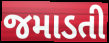
જમાડતી